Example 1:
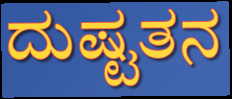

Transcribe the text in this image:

ದುಷ್ಟತನ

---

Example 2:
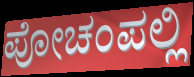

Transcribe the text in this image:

ಪೋಚಂಪಲ್ಲಿ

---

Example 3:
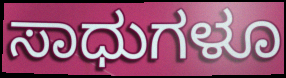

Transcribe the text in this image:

ಸಾಧುಗಳೂ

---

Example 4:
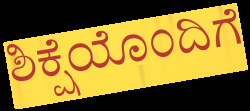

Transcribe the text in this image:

ಶಿಕ್ಷೆಯೊಂದಿಗೆ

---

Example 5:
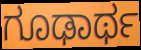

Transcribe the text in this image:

ಗೂಢಾರ್ಥ